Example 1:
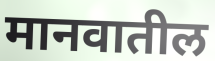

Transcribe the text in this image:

मानवातील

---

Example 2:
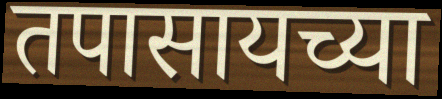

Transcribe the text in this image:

तपासायच्या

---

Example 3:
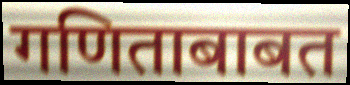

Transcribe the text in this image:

गणिताबाबत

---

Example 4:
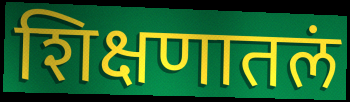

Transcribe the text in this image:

शिक्षणातलं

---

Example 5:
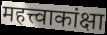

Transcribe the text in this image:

महत्त्वाकांक्षा